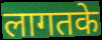
लागतके